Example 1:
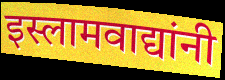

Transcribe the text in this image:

इस्लामवाद्यांनी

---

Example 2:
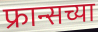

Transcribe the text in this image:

फ्रान्सच्या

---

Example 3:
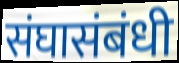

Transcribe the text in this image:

संघासंबंधी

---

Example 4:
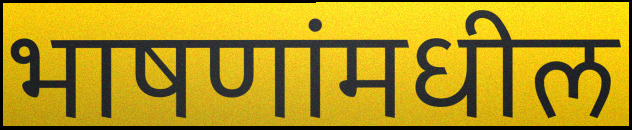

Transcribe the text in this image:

भाषणांमधील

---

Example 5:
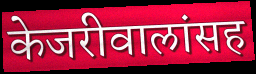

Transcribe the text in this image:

केजरीवालांसह